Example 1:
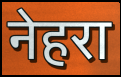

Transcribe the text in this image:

नेहरा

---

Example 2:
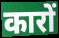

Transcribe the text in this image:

कारों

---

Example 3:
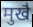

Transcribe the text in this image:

मुखै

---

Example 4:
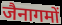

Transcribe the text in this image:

जैनागमों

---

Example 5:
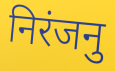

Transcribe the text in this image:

निरंजनु